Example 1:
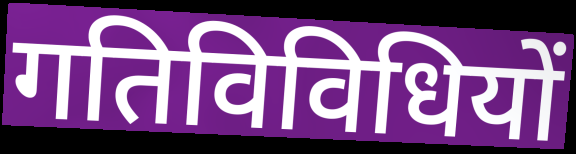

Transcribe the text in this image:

गतिविविधियों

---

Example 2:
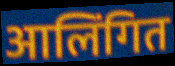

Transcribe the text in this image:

आलिंगित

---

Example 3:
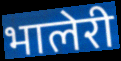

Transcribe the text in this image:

भालेरी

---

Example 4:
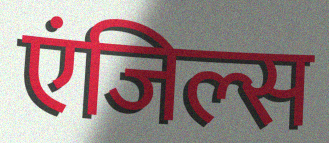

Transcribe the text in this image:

एंजिल्‍स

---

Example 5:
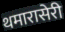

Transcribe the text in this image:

थमारासेरी